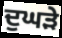
ਦੁਘੜੇ